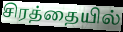
சிரத்தையில்